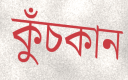
কুঁচকান